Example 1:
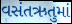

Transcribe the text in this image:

વસંતઋતુમાં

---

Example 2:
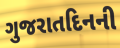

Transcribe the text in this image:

ગુજરાતદિનની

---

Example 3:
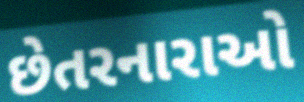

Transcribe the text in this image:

છેતરનારાઓ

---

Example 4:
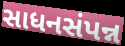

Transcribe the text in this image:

સાધનસંપન્ન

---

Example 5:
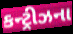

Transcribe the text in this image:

કન્ટ્રીઝના